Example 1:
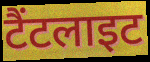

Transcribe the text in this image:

टैंटलाइट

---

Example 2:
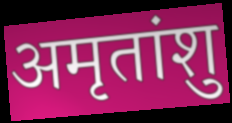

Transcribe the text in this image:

अमृतांशु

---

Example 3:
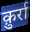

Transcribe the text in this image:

क़ुर्रा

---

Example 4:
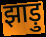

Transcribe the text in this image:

झाड़ु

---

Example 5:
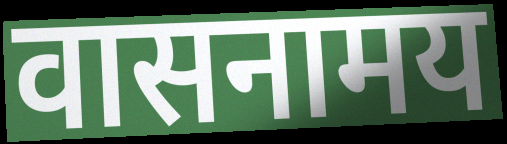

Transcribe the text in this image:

वासनामय